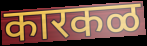
कारकळ